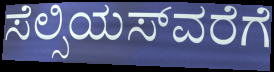
ಸೆಲ್ಸಿಯಸ್‍ವರೆಗೆ